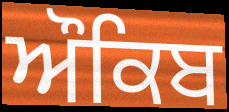
ਔਕਿਬ